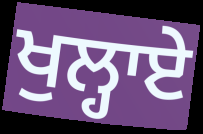
ਖੁਲ੍ਹਾਏ